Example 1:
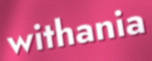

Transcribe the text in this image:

withania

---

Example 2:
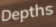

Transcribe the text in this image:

Depths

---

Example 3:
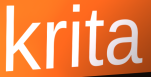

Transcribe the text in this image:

krita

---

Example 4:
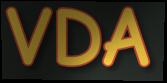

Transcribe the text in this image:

VDA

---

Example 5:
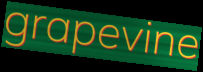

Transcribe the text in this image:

grapevine